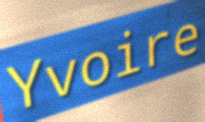
Yvoire